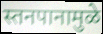
स्तनपानामुळे